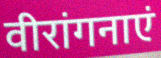
वीरांगनाएं